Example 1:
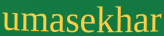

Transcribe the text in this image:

umasekhar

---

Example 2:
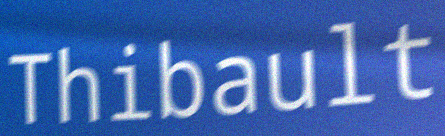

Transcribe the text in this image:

Thibault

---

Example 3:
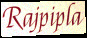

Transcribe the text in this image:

Rajpipla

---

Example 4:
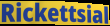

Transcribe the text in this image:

Rickettsial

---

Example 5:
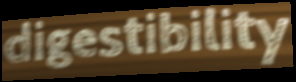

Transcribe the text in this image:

digestibility